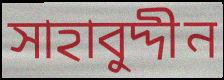
সাহাবুদ্দীন